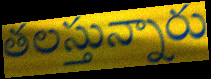
తలస్తున్నారు